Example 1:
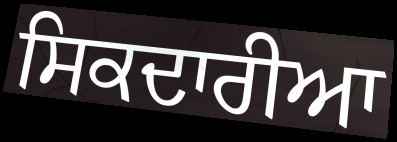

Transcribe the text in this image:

ਸਿਕਦਾਰੀਆ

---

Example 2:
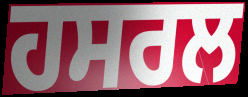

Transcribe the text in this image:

ਹਸਰਲ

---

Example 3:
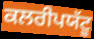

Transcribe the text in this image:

ਕਲਰੀਪਯੱਟੂ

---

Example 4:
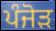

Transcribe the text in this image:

ਪੰਜੋੜ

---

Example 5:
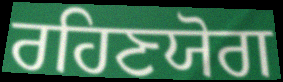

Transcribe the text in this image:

ਰਹਿਣਯੋਗ